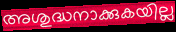
അശുദ്ധനാക്കുകയില്ല